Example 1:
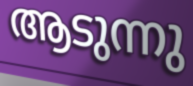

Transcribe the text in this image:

ആടുന്നു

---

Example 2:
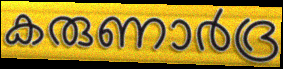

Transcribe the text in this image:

കരുണാർദ്ര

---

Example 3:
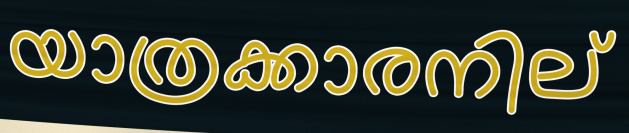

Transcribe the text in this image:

യാത്രക്കാരനില്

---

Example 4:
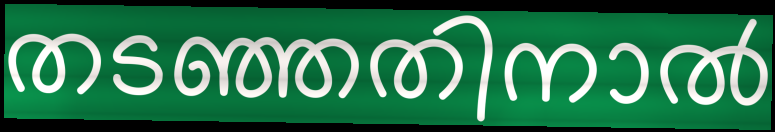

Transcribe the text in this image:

തടഞ്ഞതിനാൽ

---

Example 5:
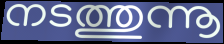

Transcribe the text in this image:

നടത്തുന്നൂ